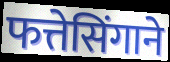
फत्तेसिंगाने